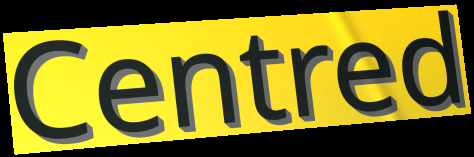
Centred